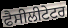
ਫੈਸੀਲੀਟੇਟਰ